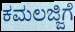
ಕಮಲಜ್ಜಿಗೆ